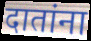
दातांना